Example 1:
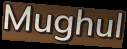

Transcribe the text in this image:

Mughul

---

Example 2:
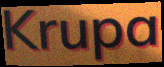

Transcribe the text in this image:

Krupa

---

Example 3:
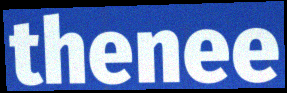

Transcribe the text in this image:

thenee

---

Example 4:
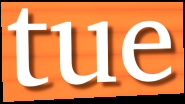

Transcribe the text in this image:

tue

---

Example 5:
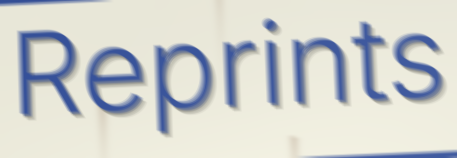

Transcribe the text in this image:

Reprints